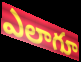
ఎలాగూ